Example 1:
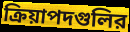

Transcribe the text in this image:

ক্রিয়াপদগুলির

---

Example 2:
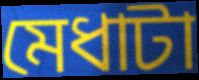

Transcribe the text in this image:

মেধাটা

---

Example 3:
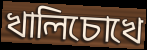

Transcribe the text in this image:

খালিচোখে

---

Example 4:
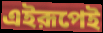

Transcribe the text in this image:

এইরূপেই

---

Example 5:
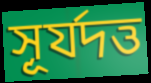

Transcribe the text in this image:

সূর্যদত্ত